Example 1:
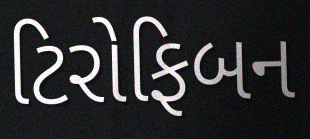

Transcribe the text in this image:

ટિરોફિબન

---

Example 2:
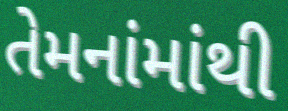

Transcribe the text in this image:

તેમનાંમાંથી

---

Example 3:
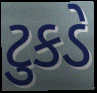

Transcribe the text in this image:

ટુકડે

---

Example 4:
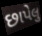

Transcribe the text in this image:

છાપેલુ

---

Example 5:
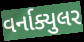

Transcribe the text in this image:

વર્નાક્યુલર